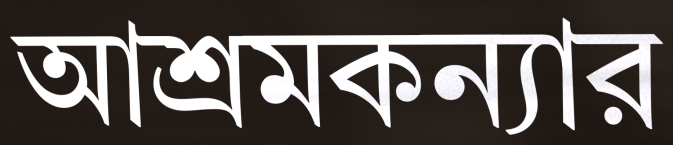
আশ্রমকন্যার